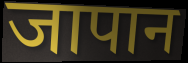
जापान